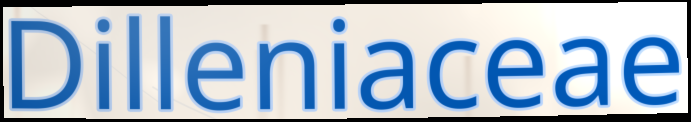
Dilleniaceae